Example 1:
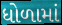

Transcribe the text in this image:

ધોળામાં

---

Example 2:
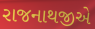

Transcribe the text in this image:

રાજનાથજીએ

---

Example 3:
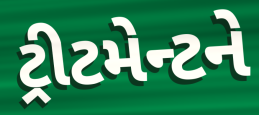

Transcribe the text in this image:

ટ્રીટમેન્ટને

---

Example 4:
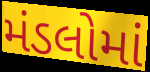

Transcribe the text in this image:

મંડલોમાં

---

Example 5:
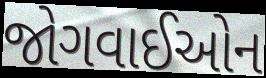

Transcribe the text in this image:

જોગવાઈઓન